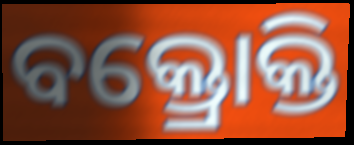
ବକ୍ତ୍ରୋକ୍ତି